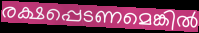
രക്ഷപ്പെടണമെങ്കിൽ